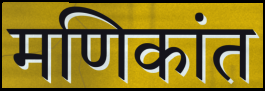
मणिकांत